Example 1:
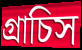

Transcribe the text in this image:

গ্রাচিস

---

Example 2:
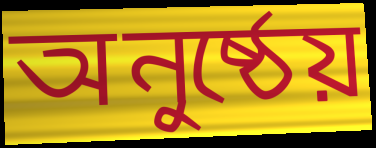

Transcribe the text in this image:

অনুষ্ঠেয়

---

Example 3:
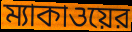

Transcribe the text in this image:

ম্যাকাওয়ের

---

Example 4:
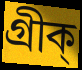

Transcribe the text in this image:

গ্রীক্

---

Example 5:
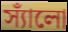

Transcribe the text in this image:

স্যাঁলো